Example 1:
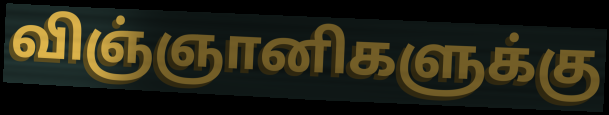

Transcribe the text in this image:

விஞ்ஞானிகளுக்கு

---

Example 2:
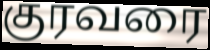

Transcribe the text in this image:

குரவரை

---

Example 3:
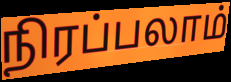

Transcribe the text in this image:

நிரப்பலாம்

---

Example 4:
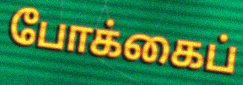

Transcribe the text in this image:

போக்கைப்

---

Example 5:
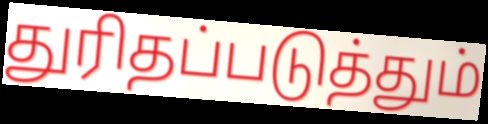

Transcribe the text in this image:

துரிதப்படுத்தும்